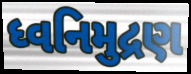
ધ્વનિમુદ્રણ